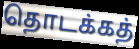
தொடக்கத்